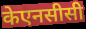
केएनसीसी